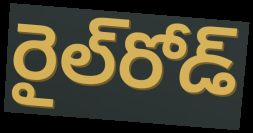
రైల్‌రోడ్